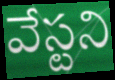
వేస్టని